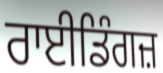
ਰਾਈਡਿੰਗਜ਼